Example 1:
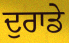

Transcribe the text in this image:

ਦੁਰਾਡੇ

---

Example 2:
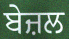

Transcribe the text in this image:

ਬੇਜ਼ਲ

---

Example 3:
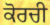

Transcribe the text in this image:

ਕੋਰਚੀ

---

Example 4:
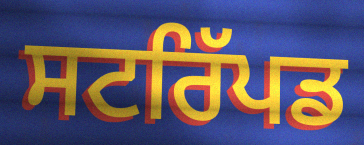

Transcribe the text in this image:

ਸਟਰਿੱਪਡ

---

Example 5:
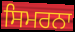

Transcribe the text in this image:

ਸਿਮਰਨਾ